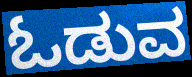
ಓಡುವ